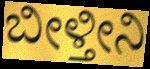
ಬೀಳ್ತೀನಿ